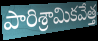
పారిశ్రామికవేత్త